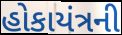
હોકાયંત્રની